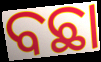
ବଛା